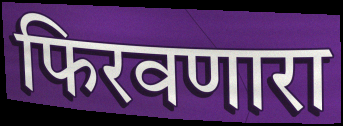
फिरवणारा